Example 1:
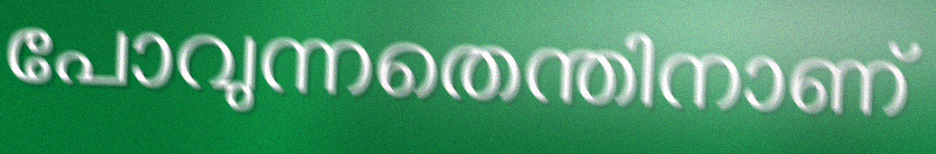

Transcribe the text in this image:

പോവുന്നതെന്തിനാണ്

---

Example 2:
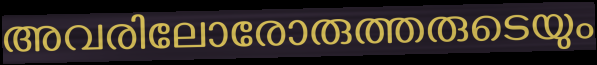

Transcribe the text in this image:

അവരിലോരോരുത്തരുടെയും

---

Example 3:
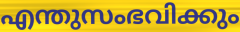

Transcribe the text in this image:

എന്തുസംഭവിക്കും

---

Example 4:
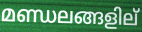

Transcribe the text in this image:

മണ്ഡലങ്ങളില്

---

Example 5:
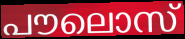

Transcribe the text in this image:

പൗലൊസ്